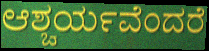
ಆಶ್ಚರ್ಯವೆಂದರೆ